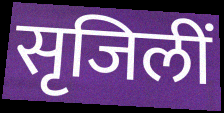
सृजिलीं